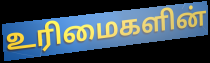
உரிமைகளின்